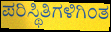
ಪರಿಸ್ಥಿತಿಗಳಿಗಿಂತ